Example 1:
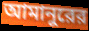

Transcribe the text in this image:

আমানুরের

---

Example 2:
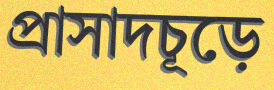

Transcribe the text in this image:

প্রাসাদচূড়ে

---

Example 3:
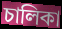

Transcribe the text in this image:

চালিকা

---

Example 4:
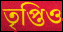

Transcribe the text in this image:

তৃপ্তিও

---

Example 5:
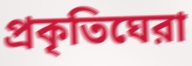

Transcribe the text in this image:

প্রকৃতিঘেরা